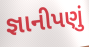
જ્ઞાનીપણું